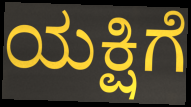
ಯಕ್ಷಿಗೆ